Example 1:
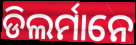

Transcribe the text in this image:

ଡିଲର୍ମାନେ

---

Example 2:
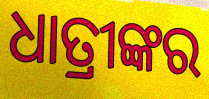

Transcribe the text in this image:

ଧାତ୍ରୀଙ୍କର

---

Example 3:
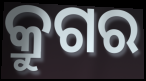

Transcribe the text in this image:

କ୍ରୁଗର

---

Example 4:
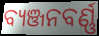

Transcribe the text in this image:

ବ୍ୟଞ୍ଜନବର୍ଣ୍ଣ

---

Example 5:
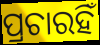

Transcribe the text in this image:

ପ୍ରଚାରହିଁ